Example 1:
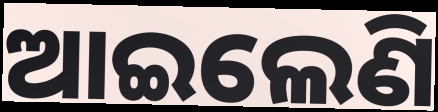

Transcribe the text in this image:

ଆଇଲେଣି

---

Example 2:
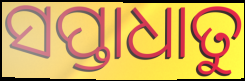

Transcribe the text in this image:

ସପ୍ତାଧାତୁ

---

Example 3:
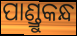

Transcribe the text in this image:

ପାଣ୍ଡ୍ରୁକନ୍ଧ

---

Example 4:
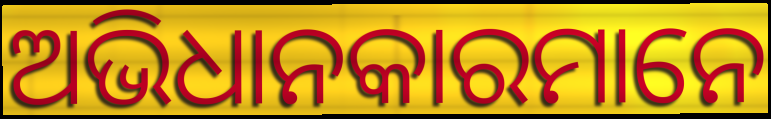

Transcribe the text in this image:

ଅଭିଧାନକାରମାନେ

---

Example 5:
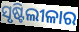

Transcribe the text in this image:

ସୃଷ୍ଟିଲୀଳାର